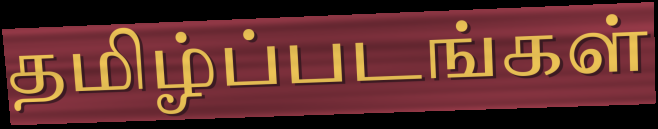
தமிழ்ப்படங்கள்